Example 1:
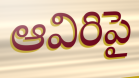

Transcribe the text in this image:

ఆవిరిపై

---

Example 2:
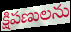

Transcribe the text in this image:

క్షిపణులను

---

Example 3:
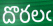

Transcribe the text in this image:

దొరలఁ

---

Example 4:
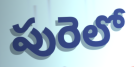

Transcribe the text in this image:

పురెలో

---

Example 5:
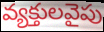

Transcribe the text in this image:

వ్యక్తులవైపు